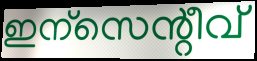
ഇന്സെന്റീവ്